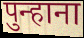
पुन्हाना